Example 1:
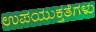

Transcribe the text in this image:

ಉಪಯುಕ್ತತೆಗಳು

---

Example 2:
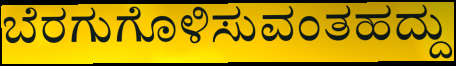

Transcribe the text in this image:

ಬೆರಗುಗೊಳಿಸುವಂತಹದ್ದು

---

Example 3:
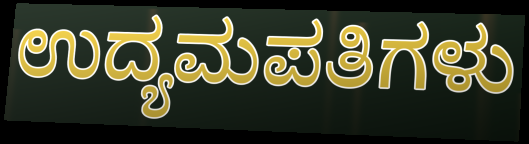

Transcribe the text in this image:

ಉದ್ಯಮಪತಿಗಳು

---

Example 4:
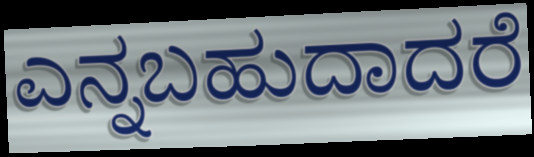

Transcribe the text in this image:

ಎನ್ನಬಹುದಾದರೆ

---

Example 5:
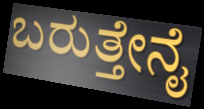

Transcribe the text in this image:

ಬರುತ್ತೇನೈ